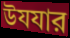
উযযার